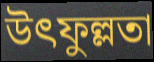
উৎফুল্লতা